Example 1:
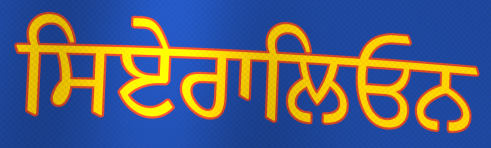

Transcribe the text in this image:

ਸਿਏਰਾਲਿਓਨ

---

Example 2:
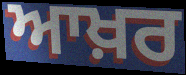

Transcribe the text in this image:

ਆਖ਼ਰ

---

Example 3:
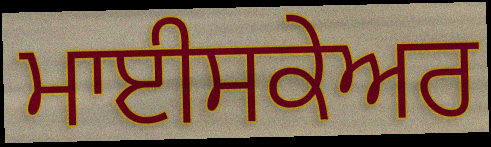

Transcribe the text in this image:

ਮਾਈਸਕੇਅਰ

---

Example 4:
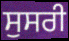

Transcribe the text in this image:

ਸੁਸਰੀ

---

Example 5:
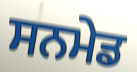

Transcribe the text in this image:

ਸਨਮੇਡ